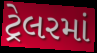
ટ્રેલરમાં